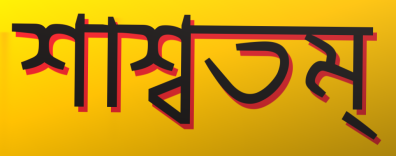
শাশ্বতম্